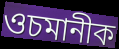
ওচমানীক